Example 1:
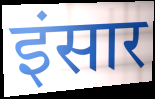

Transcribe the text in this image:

इंसार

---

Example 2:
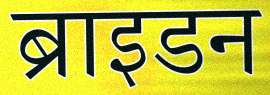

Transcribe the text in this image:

ब्राइडन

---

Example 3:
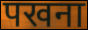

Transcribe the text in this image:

पखना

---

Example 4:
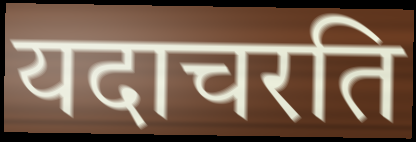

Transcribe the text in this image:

यदाचरति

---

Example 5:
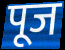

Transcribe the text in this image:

पूज